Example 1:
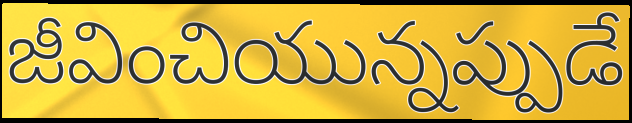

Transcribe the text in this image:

జీవించియున్నప్పుడే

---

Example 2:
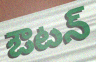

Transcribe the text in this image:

ఔటన్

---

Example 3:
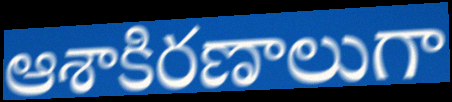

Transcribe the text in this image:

ఆశాకిరణాలుగా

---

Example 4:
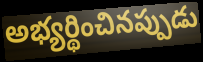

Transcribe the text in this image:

అభ్యర్థించినప్పుడు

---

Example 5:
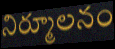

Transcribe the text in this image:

నిర్మూలనం